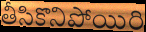
తీసికొనిపోయిరి